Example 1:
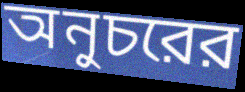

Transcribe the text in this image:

অনুচরের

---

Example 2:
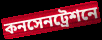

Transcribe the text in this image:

কনসেনট্রেশনে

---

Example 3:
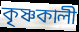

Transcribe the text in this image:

কৃষ্ণকালী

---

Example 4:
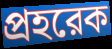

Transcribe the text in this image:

প্রহরেক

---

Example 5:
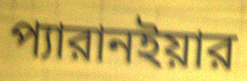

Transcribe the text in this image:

প্যারানইয়ার